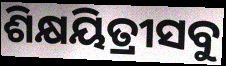
ଶିକ୍ଷୟିତ୍ରୀସବୁ